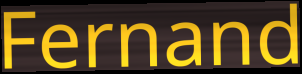
Fernand